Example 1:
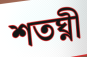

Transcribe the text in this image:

শতঘ্নী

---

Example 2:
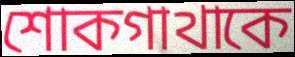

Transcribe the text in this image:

শোকগাথাকে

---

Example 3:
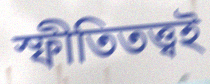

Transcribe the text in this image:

স্ফীতিতত্ত্বই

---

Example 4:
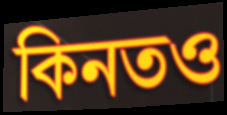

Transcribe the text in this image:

কিনতও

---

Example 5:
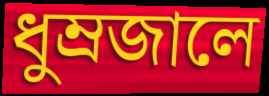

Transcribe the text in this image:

ধুম্রজালে